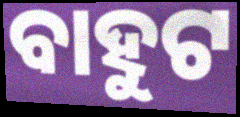
ବାହୁଟ